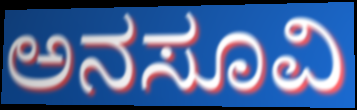
ಅನಸೂವಿ